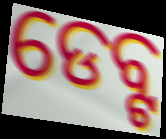
ଡେବ୍ଟ